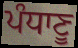
ਪੰਧਾਣੂ